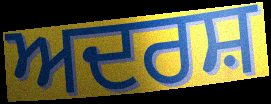
ਅਦਰਸ਼